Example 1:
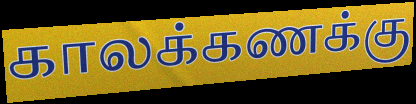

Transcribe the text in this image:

காலக்கணக்கு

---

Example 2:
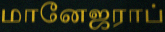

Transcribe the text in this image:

மானேஜராப்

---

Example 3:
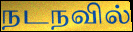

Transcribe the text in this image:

நடநவில்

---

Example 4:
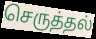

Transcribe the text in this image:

செருத்தல்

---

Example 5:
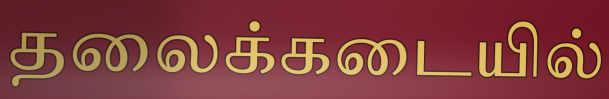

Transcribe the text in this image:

தலைக்கடையில்